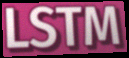
LSTM